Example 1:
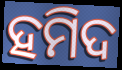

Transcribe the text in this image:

ହମିଦ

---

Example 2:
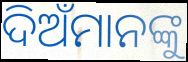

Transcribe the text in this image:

ଦିଅଁମାନଙ୍କୁ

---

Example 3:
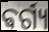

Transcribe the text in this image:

ଵର୍ଗ୍ଯ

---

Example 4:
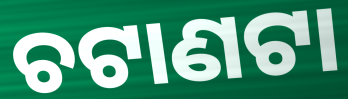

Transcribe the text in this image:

ଚଟାଣଟା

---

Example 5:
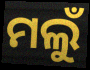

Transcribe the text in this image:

ମଲୁଁ